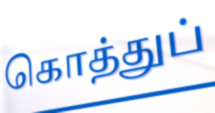
கொத்துப்